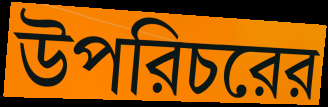
উপরিচরের